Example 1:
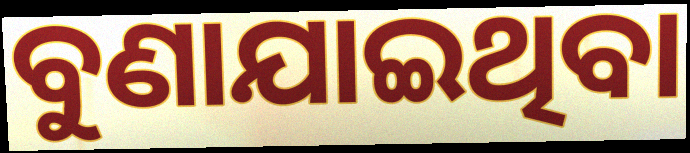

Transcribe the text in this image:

ବୁଣାଯାଇଥିବା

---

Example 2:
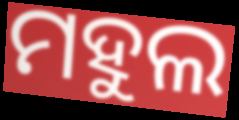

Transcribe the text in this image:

ମହୁଲ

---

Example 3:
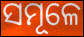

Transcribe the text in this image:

ସମୂଳେ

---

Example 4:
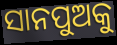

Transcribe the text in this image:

ସାନପୁଅକୁ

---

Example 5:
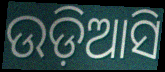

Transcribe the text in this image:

ଉଡ଼ିଆସି